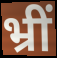
भ्रीं